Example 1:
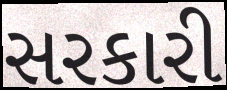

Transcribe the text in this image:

સરકારી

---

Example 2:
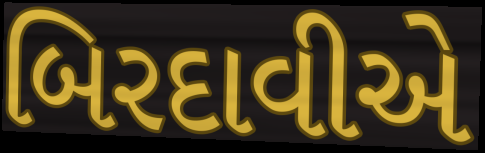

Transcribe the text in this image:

બિરદાવીએ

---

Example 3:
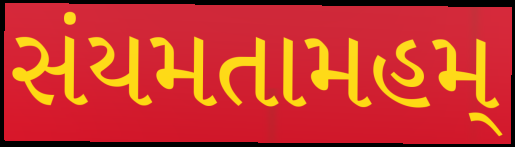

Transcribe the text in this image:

સંયમતામહમ્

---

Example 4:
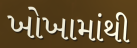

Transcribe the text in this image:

ખોખામાંથી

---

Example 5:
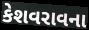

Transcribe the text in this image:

કેશવરાવના